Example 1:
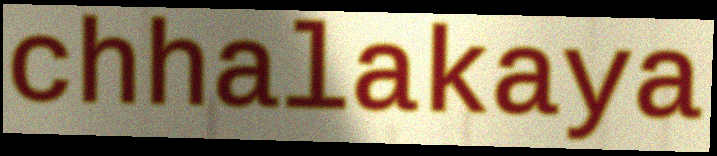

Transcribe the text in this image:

chhalakaya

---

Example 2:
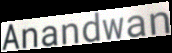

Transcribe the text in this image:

Anandwan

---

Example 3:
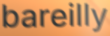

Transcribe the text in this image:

bareilly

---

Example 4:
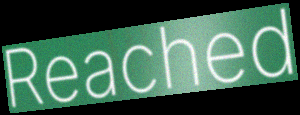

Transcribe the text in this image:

Reached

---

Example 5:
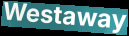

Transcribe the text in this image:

Westaway